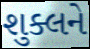
શુક્લને